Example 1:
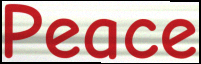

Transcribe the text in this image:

Peace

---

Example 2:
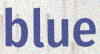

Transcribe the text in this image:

blue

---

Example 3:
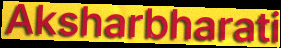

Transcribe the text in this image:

Aksharbharati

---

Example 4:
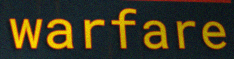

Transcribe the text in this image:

warfare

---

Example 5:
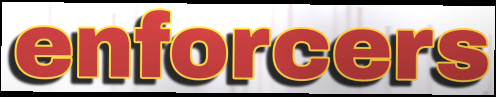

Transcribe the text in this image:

enforcers